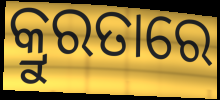
କ୍ରୁରତାରେ